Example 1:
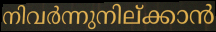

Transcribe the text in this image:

നിവർന്നുനില്ക്കാൻ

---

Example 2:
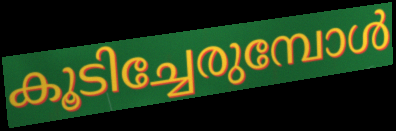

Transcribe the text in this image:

കൂടിച്ചേരുമ്പോൾ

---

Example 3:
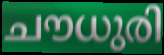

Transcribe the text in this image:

ചൗധുരി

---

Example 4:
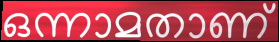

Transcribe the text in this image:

ഒന്നാമതാണ്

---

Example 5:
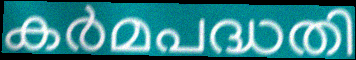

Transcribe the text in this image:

കർമപദ്ധതി